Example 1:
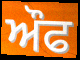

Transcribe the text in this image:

ਔਫ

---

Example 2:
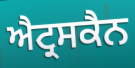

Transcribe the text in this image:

ਐਟ੍ਰਸਕੈਨ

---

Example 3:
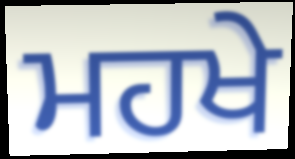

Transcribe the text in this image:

ਮਹਖੇ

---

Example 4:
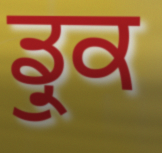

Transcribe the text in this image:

ਡ੍ਰੁਕ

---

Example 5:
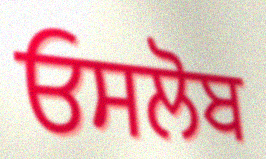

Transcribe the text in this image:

ਓਸਲੋਬ